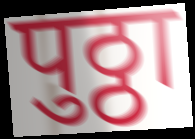
पुठ्ठा